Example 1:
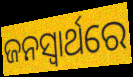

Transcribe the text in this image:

ଜନସ୍ୱାର୍ଥରେ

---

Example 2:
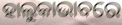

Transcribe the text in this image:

ହାଲୁକାଭାବରେ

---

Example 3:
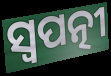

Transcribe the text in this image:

ସ୍ୱପତ୍ନୀ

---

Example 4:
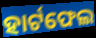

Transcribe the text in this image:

ହାର୍ଟଫେଲ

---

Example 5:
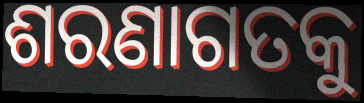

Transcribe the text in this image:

ଶରଣାଗତକୁ